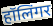
हॉलिंगर